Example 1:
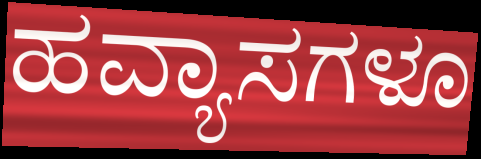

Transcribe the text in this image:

ಹವ್ಯಾಸಗಳೂ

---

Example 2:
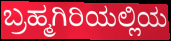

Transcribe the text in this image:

ಬ್ರಹ್ಮಗಿರಿಯಲ್ಲಿಯ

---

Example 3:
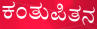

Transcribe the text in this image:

ಕಂತುಪಿತನ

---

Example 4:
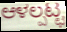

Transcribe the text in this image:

ಆಳಲ್ಪಟ್ಟ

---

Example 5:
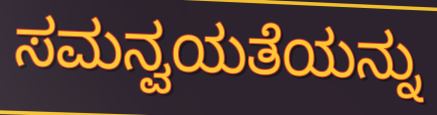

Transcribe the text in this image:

ಸಮನ್ವಯತೆಯನ್ನು